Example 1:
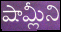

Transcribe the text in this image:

షామ్లీని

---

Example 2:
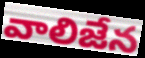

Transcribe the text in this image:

వాలిజేన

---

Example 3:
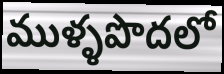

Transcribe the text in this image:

ముళ్ళపొదలో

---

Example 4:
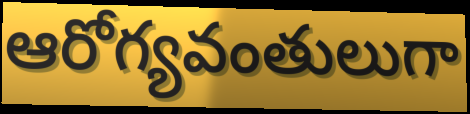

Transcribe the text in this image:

ఆరోగ్యవంతులుగా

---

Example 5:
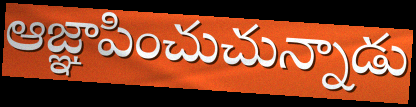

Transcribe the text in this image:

ఆజ్ఞాపించుచున్నాడు